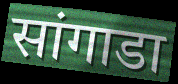
सांगाडा